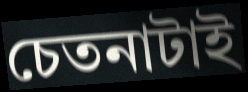
চেতনাটাই